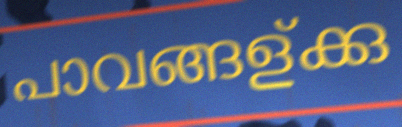
പാവങ്ങള്ക്കു